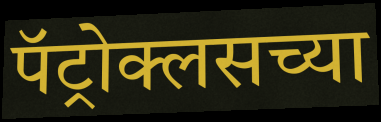
पॅट्रोक्लसच्या